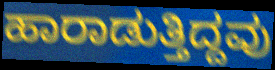
ಹಾರಾಡುತ್ತಿದ್ದವು